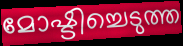
മോഷ്ടിച്ചെടുത്ത